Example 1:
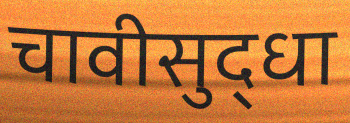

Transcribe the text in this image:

चावीसुद्धा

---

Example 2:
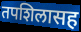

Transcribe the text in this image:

तपशिलासह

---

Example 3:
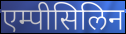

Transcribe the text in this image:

एम्पीसिलिन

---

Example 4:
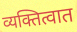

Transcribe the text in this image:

व्यक्तित्वात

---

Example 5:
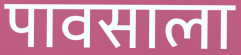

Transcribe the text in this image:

पावसाला